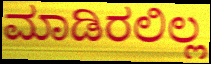
ಮಾಡಿರಲಿಲ್ಲ